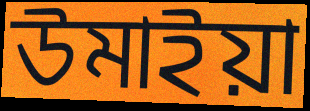
উমাইয়া